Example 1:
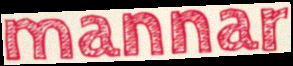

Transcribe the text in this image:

mannar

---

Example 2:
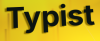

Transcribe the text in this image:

Typist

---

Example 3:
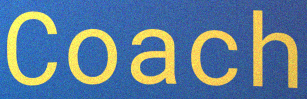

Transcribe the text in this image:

Coach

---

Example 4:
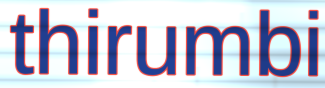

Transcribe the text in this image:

thirumbi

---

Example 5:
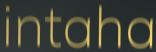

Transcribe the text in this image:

intaha